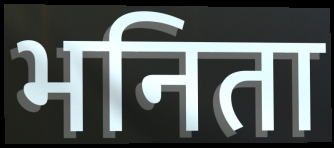
भनिता